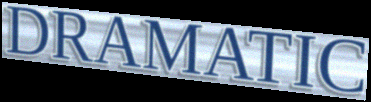
DRAMATIC